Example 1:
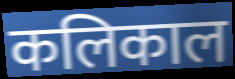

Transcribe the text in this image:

कलिकाल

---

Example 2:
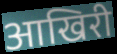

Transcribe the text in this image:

आखिरी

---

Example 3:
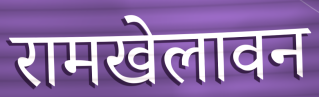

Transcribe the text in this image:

रामखेलावन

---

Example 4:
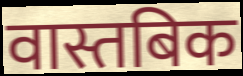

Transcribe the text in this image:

वास्तबिक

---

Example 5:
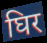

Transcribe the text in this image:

घिर